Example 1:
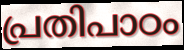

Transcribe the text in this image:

പ്രതിപാഠം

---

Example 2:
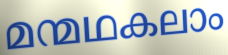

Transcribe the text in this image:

മന്മഥകലാം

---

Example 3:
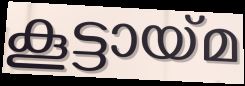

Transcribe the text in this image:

കൂട്ടായ്മ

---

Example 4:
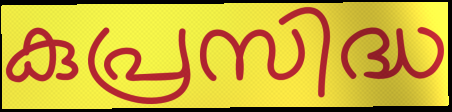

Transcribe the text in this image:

കുപ്രസിദ്ധ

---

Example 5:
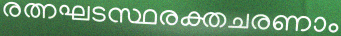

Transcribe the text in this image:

രത്നഘടസ്ഥരക്തചരണാം